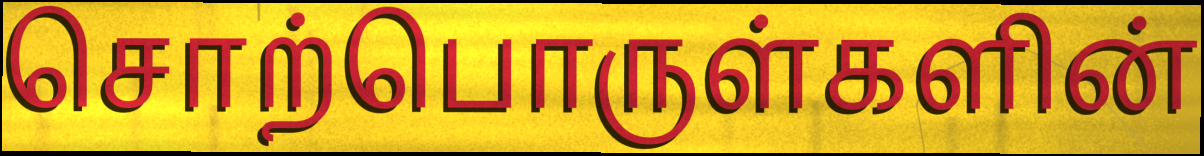
சொற்பொருள்களின்